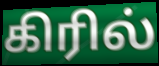
கிரில்